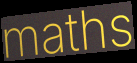
maths